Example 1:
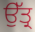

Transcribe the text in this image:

ਉੱਤ੍ਰ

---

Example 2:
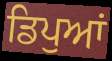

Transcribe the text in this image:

ਡਿਪੁਆਂ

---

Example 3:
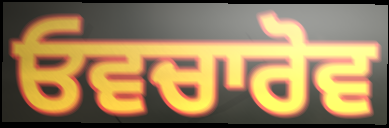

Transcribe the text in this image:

ਓਵਚਾਰੋਵ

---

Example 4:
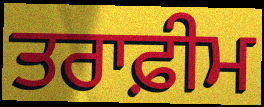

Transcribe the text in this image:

ਤਰਾਫ਼ੀਮ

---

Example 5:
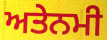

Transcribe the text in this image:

ਅਤੇਨਮੀ